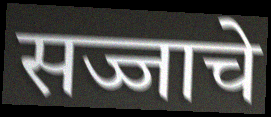
सज्जाचे